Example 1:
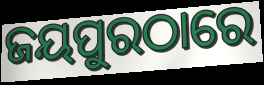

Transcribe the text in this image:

ଜୟପୁରଠାରେ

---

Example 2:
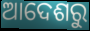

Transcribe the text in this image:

ଆଦେଶରୁ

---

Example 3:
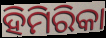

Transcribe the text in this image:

ହିମିରିକା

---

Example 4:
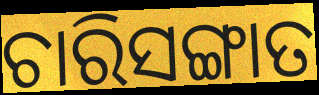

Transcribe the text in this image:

ଚାରିସଙ୍ଗାତ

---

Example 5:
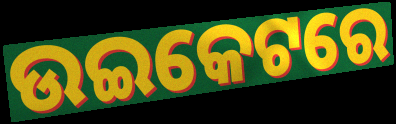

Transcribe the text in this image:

ଉଇକେଟରେ